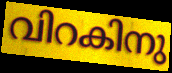
വിറകിനു